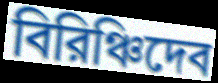
বিরিঞ্চিদেব